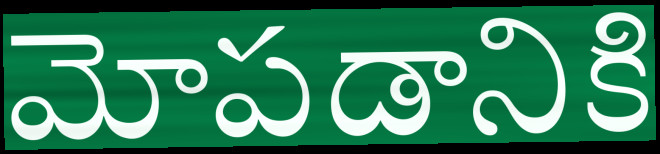
మోపడానికి